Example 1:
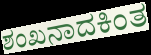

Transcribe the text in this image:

ಶಂಖನಾದಕಿಂತ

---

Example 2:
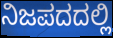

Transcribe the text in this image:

ನಿಜಪದದಲ್ಲಿ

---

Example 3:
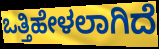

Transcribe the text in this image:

ಒತ್ತಿಹೇಳಲಾಗಿದೆ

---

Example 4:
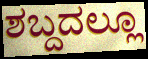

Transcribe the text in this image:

ಶಬ್ದದಲ್ಲೂ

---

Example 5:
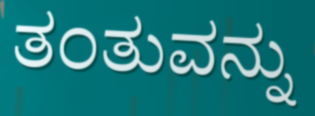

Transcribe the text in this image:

ತಂತುವನ್ನು